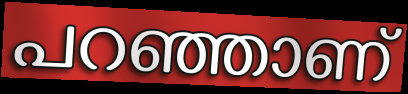
പറഞ്ഞാണ്